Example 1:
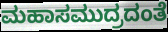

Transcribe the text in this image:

ಮಹಾಸಮುದ್ರದಂತೆ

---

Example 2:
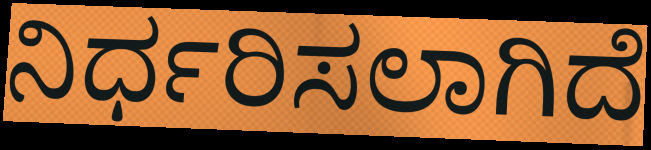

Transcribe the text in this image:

ನಿರ್ಧರಿಸಲಾಗಿದೆ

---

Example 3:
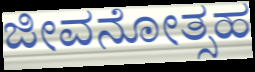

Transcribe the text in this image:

ಜೀವನೋತ್ಸಹ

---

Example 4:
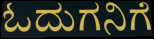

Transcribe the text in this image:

ಓದುಗನಿಗೆ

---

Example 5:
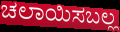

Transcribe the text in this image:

ಚಲಾಯಿಸಬಲ್ಲ